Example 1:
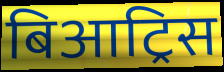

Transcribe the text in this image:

बिआट्रिस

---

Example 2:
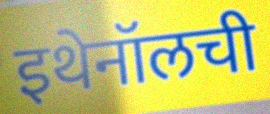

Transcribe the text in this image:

इथेनॉलची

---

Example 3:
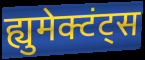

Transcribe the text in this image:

ह्युमेक्टंट्स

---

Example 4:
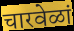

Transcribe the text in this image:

चारवेळां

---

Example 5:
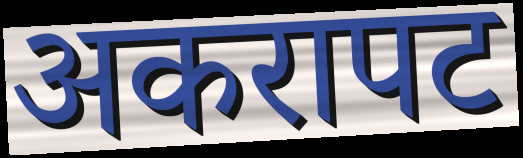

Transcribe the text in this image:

अकरापट